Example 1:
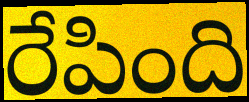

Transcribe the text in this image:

రేపింది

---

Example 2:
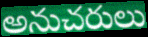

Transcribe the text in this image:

అనుచరులు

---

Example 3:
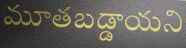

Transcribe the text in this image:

మూతబడ్డాయని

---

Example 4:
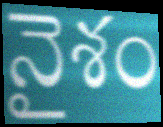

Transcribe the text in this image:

నైశం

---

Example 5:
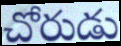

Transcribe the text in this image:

చోరుడు